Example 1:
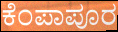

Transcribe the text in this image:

ಕೆಂಪಾಪೂರ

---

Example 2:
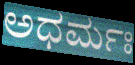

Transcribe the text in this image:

ಅಧರ್ಮಃ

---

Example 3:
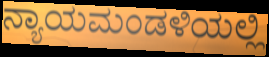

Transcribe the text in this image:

ನ್ಯಾಯಮಂಡಳಿಯಲ್ಲಿ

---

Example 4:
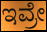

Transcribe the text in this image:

ಇವ್ರೇ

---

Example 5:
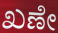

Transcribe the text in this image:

ಖಣೇ